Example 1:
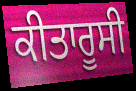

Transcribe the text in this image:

ਕੀਤਾਰੂਸੀ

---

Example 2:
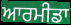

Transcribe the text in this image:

ਆਰਮੀਡਾ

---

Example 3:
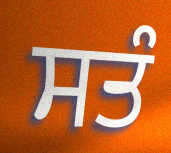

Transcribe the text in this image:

ਸਤੰ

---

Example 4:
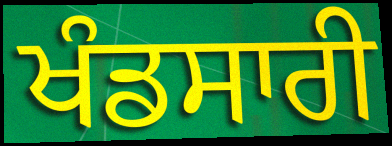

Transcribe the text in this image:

ਖੰਡਸਾਰੀ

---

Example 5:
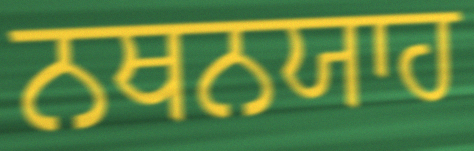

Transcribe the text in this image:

ਨਥਨਯਾਹ